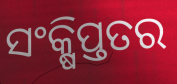
ସଂକ୍ଷିପ୍ତତର